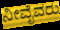
ನೀವೈವರು